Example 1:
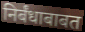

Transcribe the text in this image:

निर्बंधाबाबत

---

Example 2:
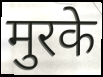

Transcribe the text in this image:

मुरके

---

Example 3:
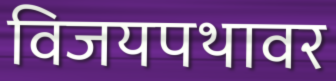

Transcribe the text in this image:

विजयपथावर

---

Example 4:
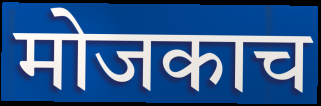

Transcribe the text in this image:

मोजकाच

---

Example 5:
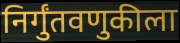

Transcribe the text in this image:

निर्गुंतवणुकीला